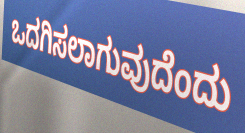
ಒದಗಿಸಲಾಗುವುದೆಂದು